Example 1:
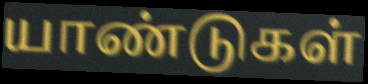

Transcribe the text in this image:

யாண்டுகள்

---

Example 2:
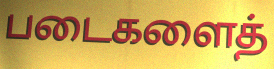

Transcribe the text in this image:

படைகளைத்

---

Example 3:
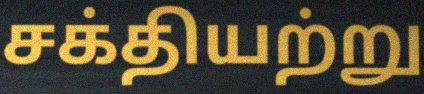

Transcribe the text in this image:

சக்தியற்று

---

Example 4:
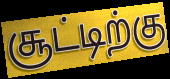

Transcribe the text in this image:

சூட்டிற்கு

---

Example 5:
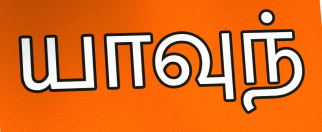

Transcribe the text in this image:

யாவுந்